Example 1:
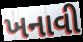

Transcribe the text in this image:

ખનાવી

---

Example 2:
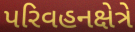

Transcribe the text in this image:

પરિવહનક્ષેત્રે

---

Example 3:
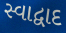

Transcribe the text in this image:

સ્વાદ્વાદ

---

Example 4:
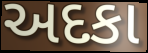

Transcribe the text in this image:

અદકા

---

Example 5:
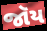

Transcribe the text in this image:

જૉય